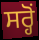
ਸਰ੍ਹੋਂ